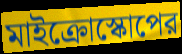
মাইক্রোস্কোপের